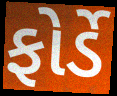
ફોર્ડે